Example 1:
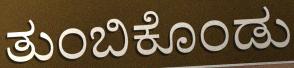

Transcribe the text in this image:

ತುಂಬಿಕೊಂಡು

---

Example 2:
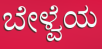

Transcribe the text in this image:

ಬೇಳ್ವೆಯ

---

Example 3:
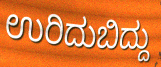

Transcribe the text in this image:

ಉರಿದುಬಿದ್ದು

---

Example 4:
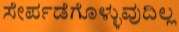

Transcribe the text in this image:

ಸೇರ್ಪಡೆಗೊಳ್ಳುವುದಿಲ್ಲ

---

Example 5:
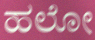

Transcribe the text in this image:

ಹಲೋ